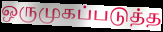
ஒருமுகப்படுத்த